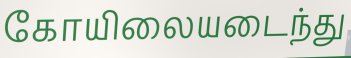
கோயிலையடைந்து